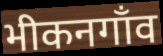
भीकनगाँव